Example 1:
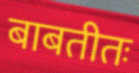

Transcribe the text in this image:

बाबतीतः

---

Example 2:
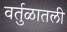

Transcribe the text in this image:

वर्तुळातली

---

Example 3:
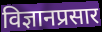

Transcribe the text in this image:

विज्ञानप्रसार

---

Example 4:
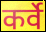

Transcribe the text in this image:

कर्वे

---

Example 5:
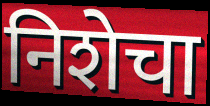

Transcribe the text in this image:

निशेचा